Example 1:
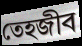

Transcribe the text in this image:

তেহজীব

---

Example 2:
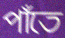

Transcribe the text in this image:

পাঁতে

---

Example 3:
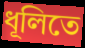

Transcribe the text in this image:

ধূলিতে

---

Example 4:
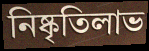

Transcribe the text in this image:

নিষ্কৃতিলাভ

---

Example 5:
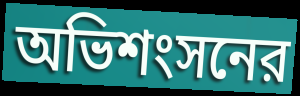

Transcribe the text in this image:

অভিশংসনের